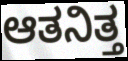
ಆತನಿತ್ತ